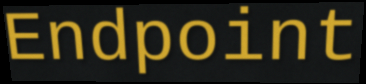
Endpoint